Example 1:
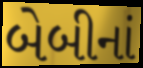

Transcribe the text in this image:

બેબીનાં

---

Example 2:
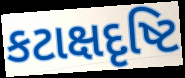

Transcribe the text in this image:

કટાક્ષદૃષ્ટિ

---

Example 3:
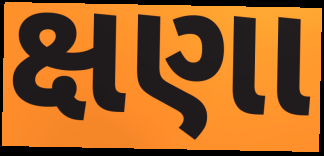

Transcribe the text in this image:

ક્ષણા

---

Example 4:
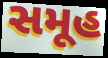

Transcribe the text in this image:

સમૂહ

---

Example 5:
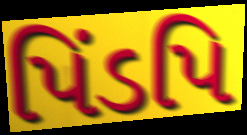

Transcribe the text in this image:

પિંડપિ